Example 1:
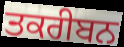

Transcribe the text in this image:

ਤਕਰੀਬਨ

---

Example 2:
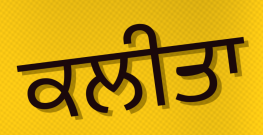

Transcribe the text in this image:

ਕਲੀਤਾ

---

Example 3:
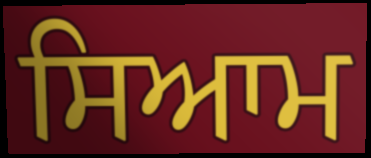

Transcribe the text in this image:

ਸਿਆਮ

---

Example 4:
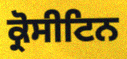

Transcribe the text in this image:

ਕ੍ਰੋਸੀਟਿਨ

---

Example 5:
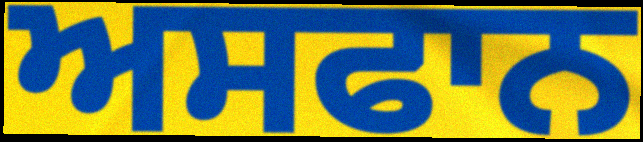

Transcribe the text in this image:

ਅਸਫਾਨ